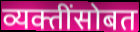
व्यक्‍तींसोबत